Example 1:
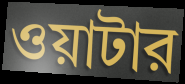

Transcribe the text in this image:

ওয়াটার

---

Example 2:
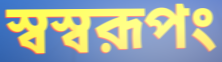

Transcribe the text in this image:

স্বস্বরূপং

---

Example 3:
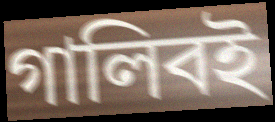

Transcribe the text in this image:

গালিবই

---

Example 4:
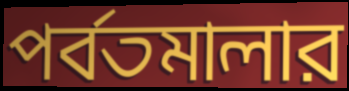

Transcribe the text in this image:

পর্বতমালার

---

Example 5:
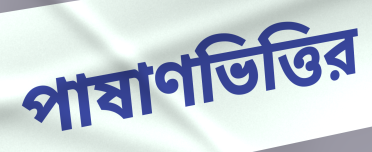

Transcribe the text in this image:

পাষাণভিত্তির